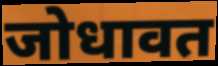
जोधावत